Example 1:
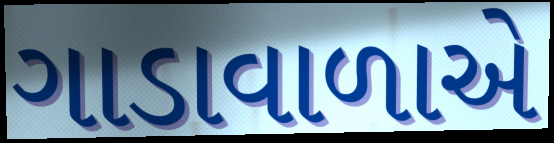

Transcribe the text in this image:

ગાડાવાળાએ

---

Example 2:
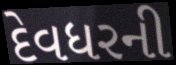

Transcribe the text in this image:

દેવધરની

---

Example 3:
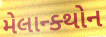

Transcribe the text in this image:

મેલાન્ક્થોન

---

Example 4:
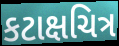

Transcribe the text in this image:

કટાક્ષચિત્ર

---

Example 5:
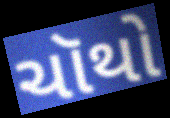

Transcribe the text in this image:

ચૉથો